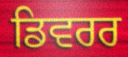
ਡਿਵਰਰ